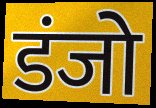
डंजो